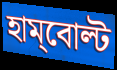
হাম্‌বোল্ট